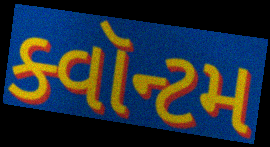
ક્વૉન્ટમ